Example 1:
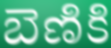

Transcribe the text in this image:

బెణికి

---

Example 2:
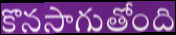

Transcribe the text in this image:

కొనసాగుతోంది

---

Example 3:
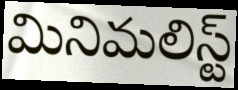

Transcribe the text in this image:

మినిమలిస్ట్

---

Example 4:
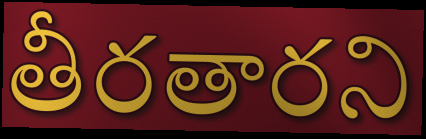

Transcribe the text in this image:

తీరతారని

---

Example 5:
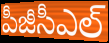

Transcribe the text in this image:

పీజీసీఎల్